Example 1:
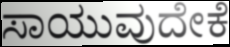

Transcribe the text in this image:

ಸಾಯುವುದೇಕೆ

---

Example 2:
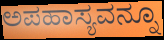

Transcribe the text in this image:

ಅಪಹಾಸ್ಯವನ್ನೂ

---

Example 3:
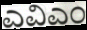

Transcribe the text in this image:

ಎವಿಎಂ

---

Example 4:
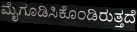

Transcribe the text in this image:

ಮೈಗೂಡಿಸಿಕೊಂಡಿರುತ್ತದೆ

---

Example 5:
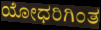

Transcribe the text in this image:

ಯೋಧರಿಗಿಂತ